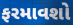
ફરમાવશો